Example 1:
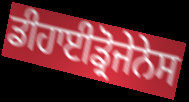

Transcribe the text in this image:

ਡੀਹਾਈਡ੍ਰੋਜੇਨੇਸ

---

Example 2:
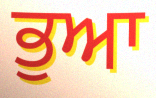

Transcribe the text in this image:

ਭੁਆ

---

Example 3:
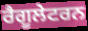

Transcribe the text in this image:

ਰੈਗੂਲੇਟਰਨ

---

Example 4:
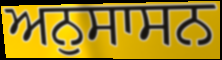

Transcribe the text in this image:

ਅਨੁਸਾਸਨ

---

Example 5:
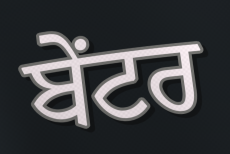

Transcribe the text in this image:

ਬੇਂਟਰ